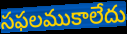
సఫలముకాలేదు